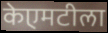
केएमटीला